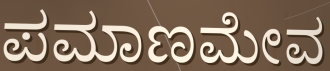
ಪಮಾಣಮೇವ